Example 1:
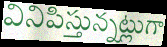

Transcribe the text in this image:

వినిపిస్తున్నట్లుగా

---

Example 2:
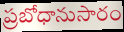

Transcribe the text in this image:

ప్రబోధానుసారం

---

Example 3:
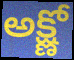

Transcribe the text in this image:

అక్ష్ణో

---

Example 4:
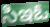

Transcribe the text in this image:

సిఇఓ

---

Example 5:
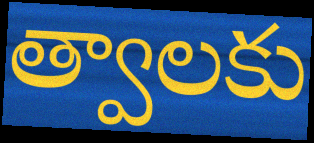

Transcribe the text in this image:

త్వాలకు